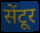
सेंटूर